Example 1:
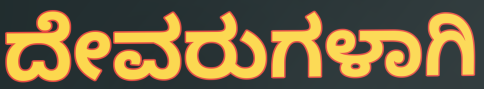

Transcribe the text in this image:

ದೇವರುಗಳಾಗಿ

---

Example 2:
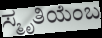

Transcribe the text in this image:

ಸ್ಮೃತಿಯೆಂಬ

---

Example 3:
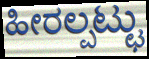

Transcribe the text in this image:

ಹೀರಲ್ಪಟ್ಟು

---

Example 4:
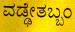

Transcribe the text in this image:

ವಡ್ಢೇತಬ್ಬಂ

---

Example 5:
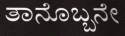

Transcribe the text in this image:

ತಾನೊಬ್ಬನೇ